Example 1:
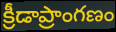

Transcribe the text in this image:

క్రీడాప్రాంగణం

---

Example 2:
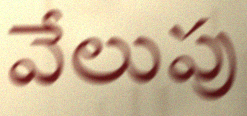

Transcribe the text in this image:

వేలుపు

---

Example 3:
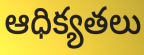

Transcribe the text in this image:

ఆధిక్యతలు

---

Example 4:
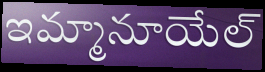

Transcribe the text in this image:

ఇమ్మానూయేల్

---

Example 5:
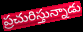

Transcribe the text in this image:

ప్రచురిస్తున్నాడు